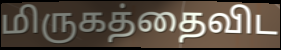
மிருகத்தைவிட